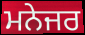
ਮਨੇਜਰ